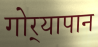
गोर्यापान